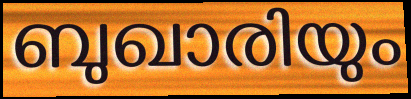
ബുഖാരിയും